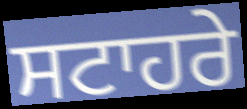
ਸਟਾਹਰੇ